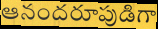
ఆనందరూపుడిగా